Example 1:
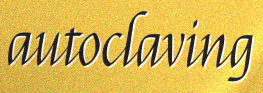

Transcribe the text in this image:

autoclaving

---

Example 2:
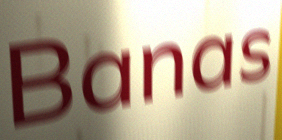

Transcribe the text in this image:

Banas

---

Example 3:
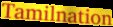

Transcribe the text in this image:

Tamilnation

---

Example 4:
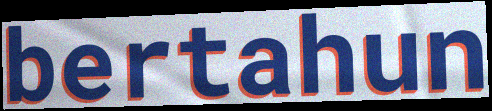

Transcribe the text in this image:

bertahun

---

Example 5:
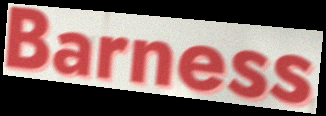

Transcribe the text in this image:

Barness